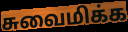
சுவைமிக்க